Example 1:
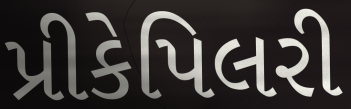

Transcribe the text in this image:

પ્રીકેપિલરી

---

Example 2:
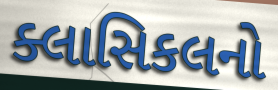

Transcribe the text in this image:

ક્લાસિકલનો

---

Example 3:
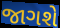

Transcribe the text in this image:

જાગશે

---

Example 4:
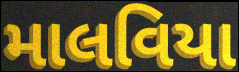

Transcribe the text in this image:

માલવિયા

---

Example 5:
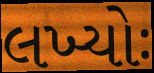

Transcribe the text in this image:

લખ્યોઃ